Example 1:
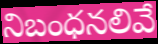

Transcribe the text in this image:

నిబంధనలివే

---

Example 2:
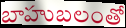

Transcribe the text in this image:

బాహుబలంతో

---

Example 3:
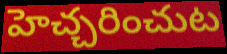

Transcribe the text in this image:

హెచ్చరించుట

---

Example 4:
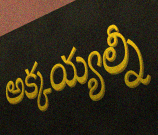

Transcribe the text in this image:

అక్కయ్యల్నీ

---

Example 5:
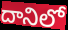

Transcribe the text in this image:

దానిలో